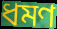
ধমণ